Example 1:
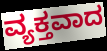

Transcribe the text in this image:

ವ್ಯಕ್ತವಾದ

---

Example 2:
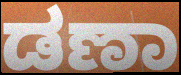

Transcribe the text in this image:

ಡಣಾ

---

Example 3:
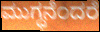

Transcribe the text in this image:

ಮುಗ್ಧನೆಂದರೆ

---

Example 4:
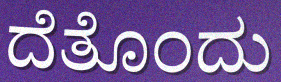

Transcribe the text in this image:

ದೆತೊಂದು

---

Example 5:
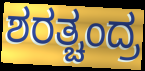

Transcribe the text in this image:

ಶರತ್ಚಂದ್ರ